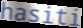
hasiti